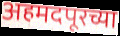
अहमदपूरच्या